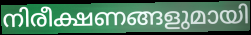
നിരീക്ഷണങ്ങളുമായി